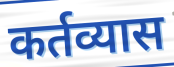
कर्तव्यास